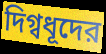
দিগ্বধূদের